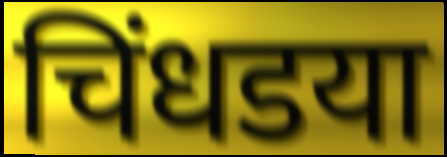
चिंधडया